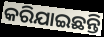
କରିଯାଇଛନ୍ତି